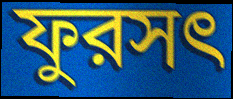
ফুরসৎ